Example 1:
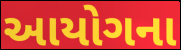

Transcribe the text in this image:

આયોગના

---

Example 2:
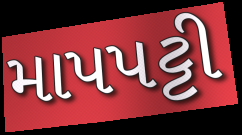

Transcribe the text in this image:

માપપટ્ટી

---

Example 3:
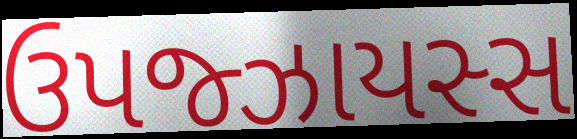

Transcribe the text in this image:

ઉપજ્ઝાયસ્સ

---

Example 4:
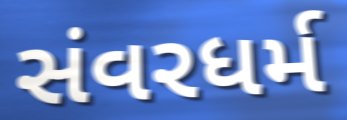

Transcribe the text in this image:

સંવરધર્મ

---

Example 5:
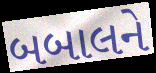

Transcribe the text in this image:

બબાલને